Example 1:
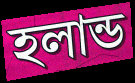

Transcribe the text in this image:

হলান্ড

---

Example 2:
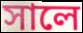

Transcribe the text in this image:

সালে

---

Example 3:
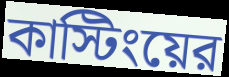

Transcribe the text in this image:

কাস্টিংয়ের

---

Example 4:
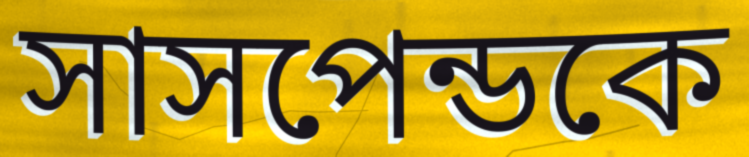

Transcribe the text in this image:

সাসপেন্ডকে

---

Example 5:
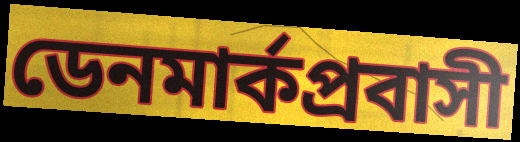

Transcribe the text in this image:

ডেনমার্কপ্রবাসী